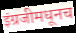
इंग्रजीमधूनच